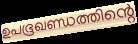
ഉപഭൂഖണ്ഡത്തിന്റെ